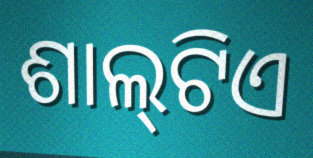
ଶାଲ୍‌ଟିଏ